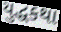
યુદ્ધકથા